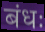
बंधः